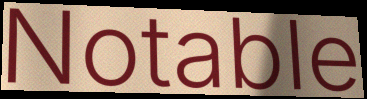
Notable